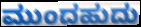
ಮುಂದಹುದು